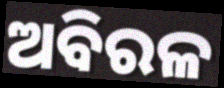
ଅବିରଳ